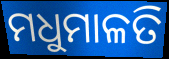
ମଧୁମାଳତି